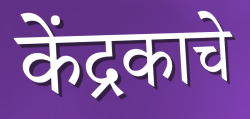
केंद्रकाचे